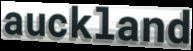
auckland